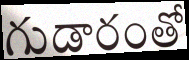
గుడారంతో